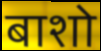
बाशो